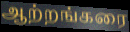
ஆற்றங்கரை